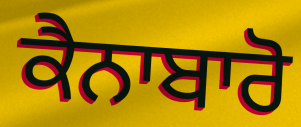
ਕੈਨਾਬਾਰੋ